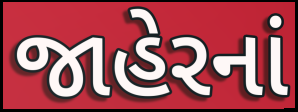
જાહેરનાં